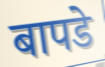
बापडे